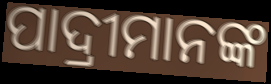
ପାଦ୍ରୀମାନଙ୍କ